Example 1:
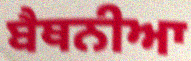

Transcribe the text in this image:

ਬੈਥਨੀਆ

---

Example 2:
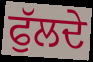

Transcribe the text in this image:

ਫੁੱਲਦੇ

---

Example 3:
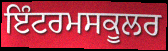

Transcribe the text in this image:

ਇੰਟਰਮਸਕੂਲਰ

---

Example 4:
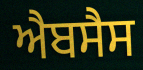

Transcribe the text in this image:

ਐਬਸੈਸ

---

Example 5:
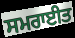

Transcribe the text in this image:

ਸਮਰਾਈਤ